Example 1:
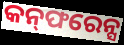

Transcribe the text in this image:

କନ୍‌ଫରେନ୍ସ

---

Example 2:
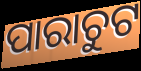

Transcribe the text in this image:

ପାରାଚୁଟ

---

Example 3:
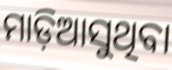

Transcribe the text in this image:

ମାଡ଼ିଆସୁଥିବା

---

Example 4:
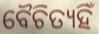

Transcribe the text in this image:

ବୈଚିତ୍ୟହିଁ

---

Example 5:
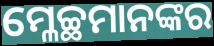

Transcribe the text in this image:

ମ୍ଳେଚ୍ଛମାନଙ୍କର